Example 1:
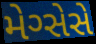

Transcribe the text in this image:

મેગ્સેસે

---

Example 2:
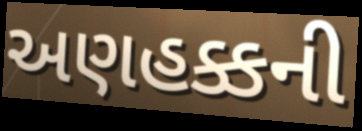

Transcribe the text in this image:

અણહક્કની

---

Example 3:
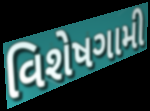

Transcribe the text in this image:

વિશેષગામી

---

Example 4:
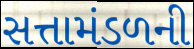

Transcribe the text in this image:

સત્તામંડળની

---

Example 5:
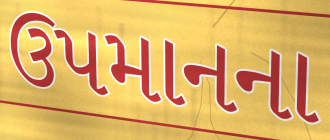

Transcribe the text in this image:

ઉપમાનના